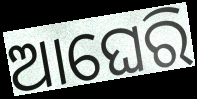
ଆଘେରି